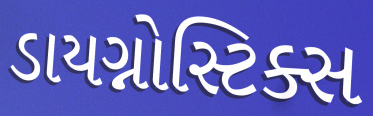
ડાયગ્નોસ્ટિક્સ